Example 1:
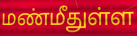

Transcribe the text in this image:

மண்மீதுள்ள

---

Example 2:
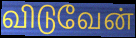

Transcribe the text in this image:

விடுவேன்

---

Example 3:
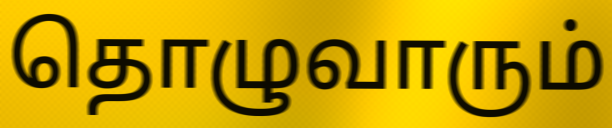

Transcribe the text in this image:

தொழுவாரும்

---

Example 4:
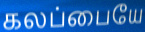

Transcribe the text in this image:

கலப்பையே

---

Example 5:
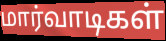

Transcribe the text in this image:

மார்வாடிகள்